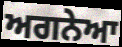
ਅਗਨੇਆ